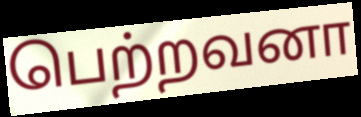
பெற்றவனா